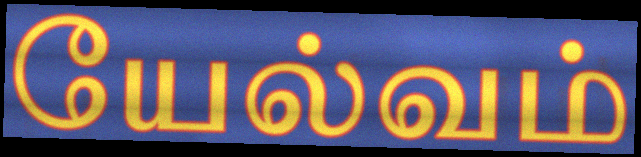
யேல்வம்